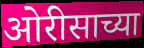
ओरीसाच्या